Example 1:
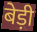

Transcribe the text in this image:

बेड़ी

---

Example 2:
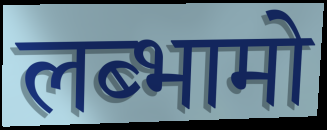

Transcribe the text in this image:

लब्भामो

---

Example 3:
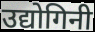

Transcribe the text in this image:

उद्योगिनी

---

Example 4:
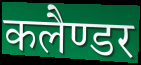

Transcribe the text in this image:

कलैण्डर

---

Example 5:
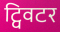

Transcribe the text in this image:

ट्विवटर